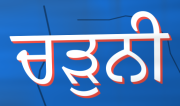
ਚੜੁਨੀ